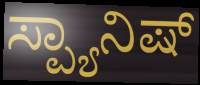
ಸ್ಪ್ಯಾನಿಷ್